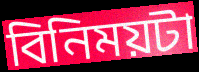
বিনিময়টা